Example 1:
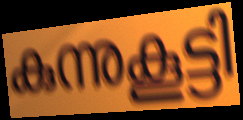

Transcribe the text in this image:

കുന്നുകൂട്ടി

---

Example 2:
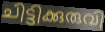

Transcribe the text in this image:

ചിട്ടിക്കുരുവി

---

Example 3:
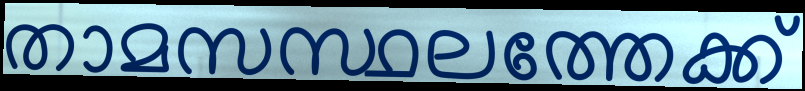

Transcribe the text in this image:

താമസസ്ഥലത്തേക്ക്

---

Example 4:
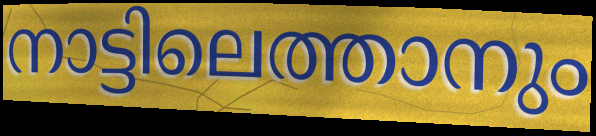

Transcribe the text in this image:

നാട്ടിലെത്താനും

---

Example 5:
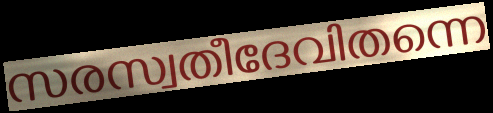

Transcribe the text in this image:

സരസ്വതീദേവിതന്നെ